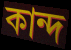
কান্দ